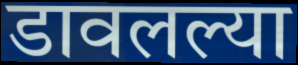
डावलल्या